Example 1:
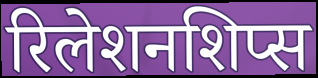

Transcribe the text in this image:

रिलेशनशिप्स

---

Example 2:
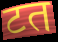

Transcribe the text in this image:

टत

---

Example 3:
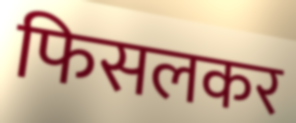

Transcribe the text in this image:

फिसलकर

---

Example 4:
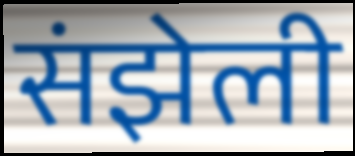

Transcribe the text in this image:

संझेली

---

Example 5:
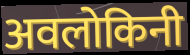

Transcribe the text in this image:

अवलोकिनी